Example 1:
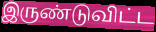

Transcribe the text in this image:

இருண்டுவிட்ட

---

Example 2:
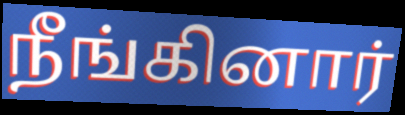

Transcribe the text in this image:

நீங்கினார்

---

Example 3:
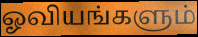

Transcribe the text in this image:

ஓவியங்களும்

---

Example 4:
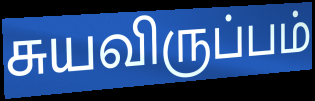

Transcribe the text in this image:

சுயவிருப்பம்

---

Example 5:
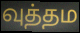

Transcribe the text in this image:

வுத்தம